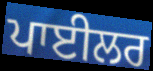
ਪਾਈਲਰ